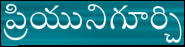
ప్రియునిగూర్చి